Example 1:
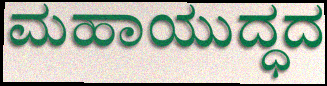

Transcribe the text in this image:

ಮಹಾಯುದ್ಧದ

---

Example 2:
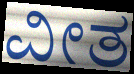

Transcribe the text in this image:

ವೀತ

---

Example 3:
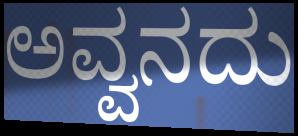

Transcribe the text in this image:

ಅವ್ವನದು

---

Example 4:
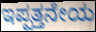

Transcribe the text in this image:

ಇಪ್ಪತ್ತನೇಯ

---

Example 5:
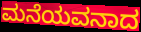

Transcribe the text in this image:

ಮನೆಯವನಾದ